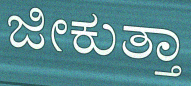
ಜೀಕುತ್ತಾ